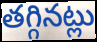
తగ్గినట్లు